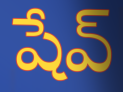
షేవ్